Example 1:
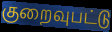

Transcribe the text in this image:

குறைவுபட்டு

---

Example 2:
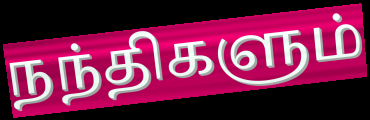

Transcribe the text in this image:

நந்திகளும்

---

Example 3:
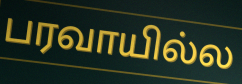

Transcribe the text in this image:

பரவாயில்ல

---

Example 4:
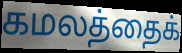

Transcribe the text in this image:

கமலத்தைக்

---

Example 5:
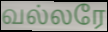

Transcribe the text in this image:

வல்லரே